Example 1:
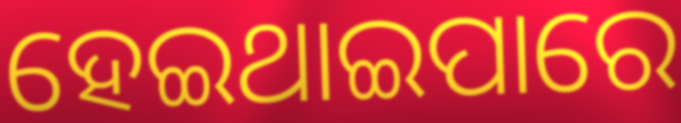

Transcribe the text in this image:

ହେଇଥାଇପାରେ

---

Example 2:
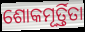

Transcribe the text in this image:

ଶୋକମୂର୍ତ୍ତିତା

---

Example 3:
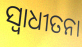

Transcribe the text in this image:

ସ୍ବାଧୀତନା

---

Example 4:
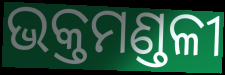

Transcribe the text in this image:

ଭକ୍ତମଣ୍ଡଳୀ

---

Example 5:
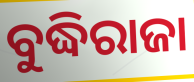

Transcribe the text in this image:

ବୁଦ୍ଧିରାଜା